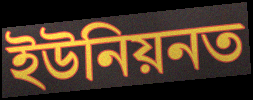
ইউনিয়নত